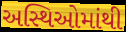
અસ્થિઓમાંથી